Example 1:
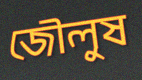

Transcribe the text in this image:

জৌলুষ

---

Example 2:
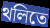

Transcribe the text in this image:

থলিতে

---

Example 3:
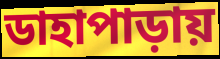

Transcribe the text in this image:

ডাহাপাড়ায়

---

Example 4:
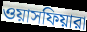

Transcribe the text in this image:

ওয়াসফিয়ারা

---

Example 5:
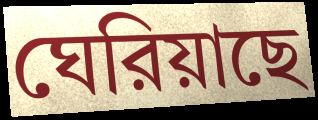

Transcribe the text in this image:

ঘেরিয়াছে